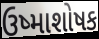
ઉષ્માશોષક